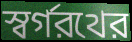
স্বর্গরথের